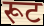
रूट